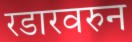
रडारवरुन